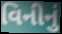
વિનીનું